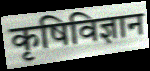
कृषिविज्ञान